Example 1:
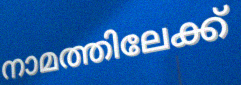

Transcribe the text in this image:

നാമത്തിലേക്ക്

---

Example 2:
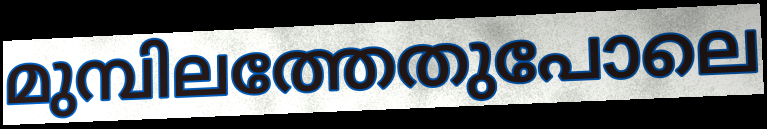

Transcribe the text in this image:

മുമ്പിലത്തേതുപോലെ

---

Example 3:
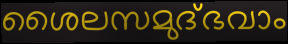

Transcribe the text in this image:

ശൈലസമുദ്ഭവാം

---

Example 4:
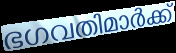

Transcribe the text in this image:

ഭഗവതിമാർക്ക്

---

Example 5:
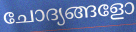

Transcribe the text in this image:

ചോദ്യങ്ങളോ